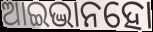
ଆଇଦ୍ଭାନହୋ